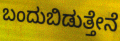
ಬಂದುಬಿಡುತ್ತೇನೆ